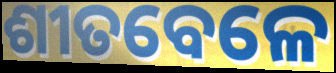
ଶୀତବେଳେ